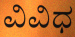
ವಿವಿಧ